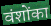
वंशोंका